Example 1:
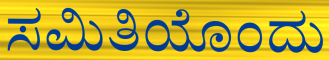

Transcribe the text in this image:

ಸಮಿತಿಯೊಂದು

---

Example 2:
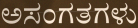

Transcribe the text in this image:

ಅಸಂಗತಗಳು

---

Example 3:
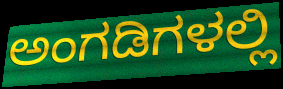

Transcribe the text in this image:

ಅಂಗಡಿಗಳಲ್ಲಿ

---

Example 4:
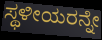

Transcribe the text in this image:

ಸ್ಥಳೀಯರನ್ನೇ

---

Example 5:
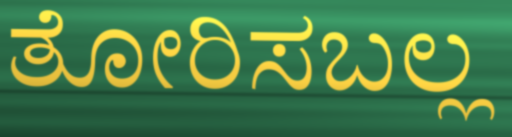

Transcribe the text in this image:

ತೋರಿಸಬಲ್ಲ